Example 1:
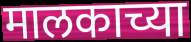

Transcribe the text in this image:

मालकाच्या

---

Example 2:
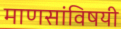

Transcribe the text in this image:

माणसांविषयी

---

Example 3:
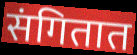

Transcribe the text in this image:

संगितात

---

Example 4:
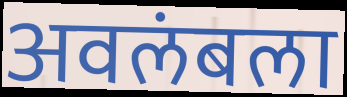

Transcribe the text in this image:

अवलंबला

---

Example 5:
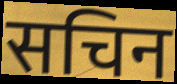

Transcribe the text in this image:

सचिन